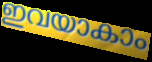
ഇവയാകാം